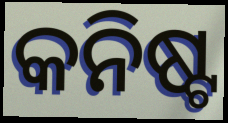
କନିଷ୍ଟ